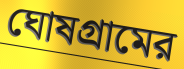
ঘোষগ্রামের